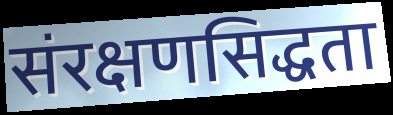
संरक्षणसिद्धता